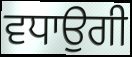
ਵਧਾਉਗੀ